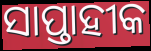
ସାପ୍ତାହୀକ